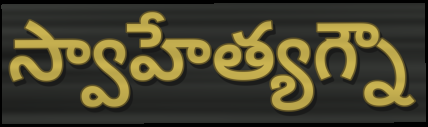
స్వాహేత్యగ్నౌ